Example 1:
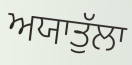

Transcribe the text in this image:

ਅਯਾਤੁੱਲਾ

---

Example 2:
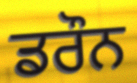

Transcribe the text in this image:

ਡਰੌਨ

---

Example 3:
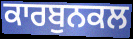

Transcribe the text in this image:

ਕਾਰਬੁਨਕਲ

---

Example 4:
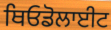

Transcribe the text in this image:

ਥਿਓਡੋਲਾਈਟ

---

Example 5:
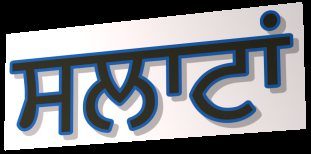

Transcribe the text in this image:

ਸਲਾਟਾਂ